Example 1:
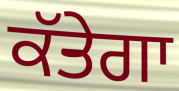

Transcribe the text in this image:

ਕੱਤੇਗਾ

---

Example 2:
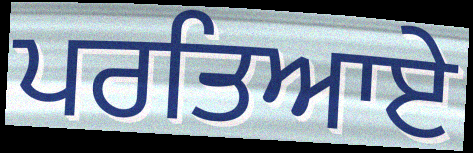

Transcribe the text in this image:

ਪਰਤਿਆਏ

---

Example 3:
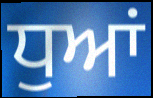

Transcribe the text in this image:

ਧੁਆਂ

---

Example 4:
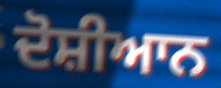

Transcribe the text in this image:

ਦੋਸ਼ੀਆਨ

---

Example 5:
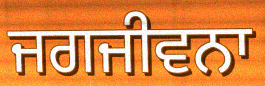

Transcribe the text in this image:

ਜਗਜੀਵਨਾ